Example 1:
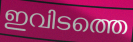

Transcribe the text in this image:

ഇവിടത്തെ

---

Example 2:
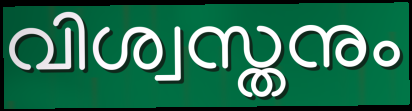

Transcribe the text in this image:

വിശ്വസ്തനും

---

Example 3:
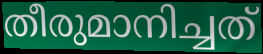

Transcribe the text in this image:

തീരുമാനിച്ചത്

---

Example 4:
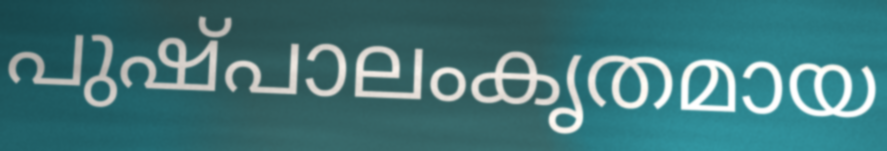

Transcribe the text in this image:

പുഷ്പാലംകൃതമായ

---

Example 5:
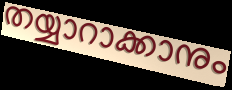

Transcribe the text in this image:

തയ്യാറാക്കാനും